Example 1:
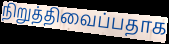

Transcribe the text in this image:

நிறுத்திவைப்பதாக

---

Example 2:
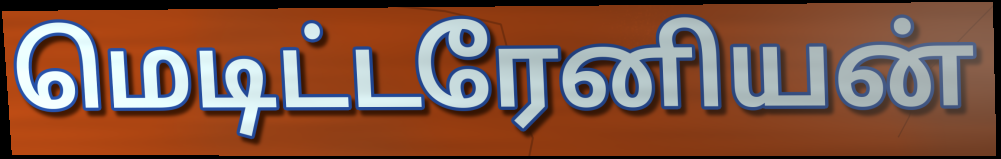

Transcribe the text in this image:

மெடிட்டரேனியன்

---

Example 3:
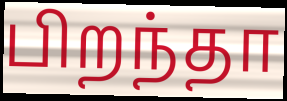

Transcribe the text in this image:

பிறந்தா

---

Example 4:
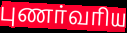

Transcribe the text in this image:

புணர்வரிய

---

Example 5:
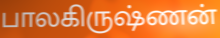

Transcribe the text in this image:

பாலகிருஷ்ணன்